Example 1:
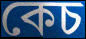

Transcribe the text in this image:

কেচ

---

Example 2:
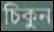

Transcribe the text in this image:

চিকুন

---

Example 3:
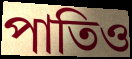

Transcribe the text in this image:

পাতিও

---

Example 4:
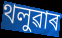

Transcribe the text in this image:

থলুৱাৰ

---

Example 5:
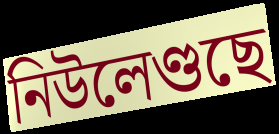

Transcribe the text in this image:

নিউলেণ্ডছে